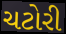
ચટોરી